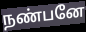
நண்பனே